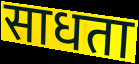
साधता